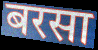
बरसा